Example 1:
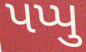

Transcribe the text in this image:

પપ્પુ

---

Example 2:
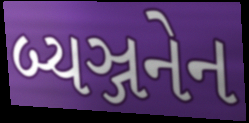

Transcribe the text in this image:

બ્યઞ્જનેન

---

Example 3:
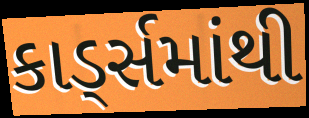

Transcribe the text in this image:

કાર્ડ્સમાંથી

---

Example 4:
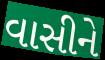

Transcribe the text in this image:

વાસીને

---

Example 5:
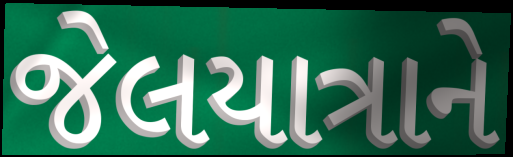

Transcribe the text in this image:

જેલયાત્રાને